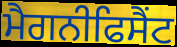
ਮੈਗਨੀਫਿਸੈਂਟ